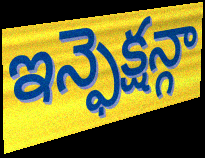
ఇన్ఫెక్షన్గా